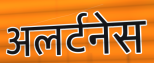
अलर्टनेस